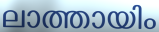
ലാത്തായിം